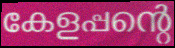
കേളപ്പന്റെ